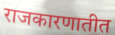
राजकारणातीत